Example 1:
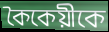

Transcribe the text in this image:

কৈকেয়ীকে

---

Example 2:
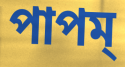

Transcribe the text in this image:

পাপম্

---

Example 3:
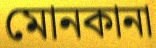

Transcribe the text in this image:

মোনকানা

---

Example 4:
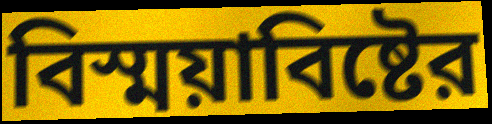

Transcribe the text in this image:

বিস্ময়াবিষ্টের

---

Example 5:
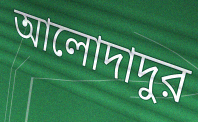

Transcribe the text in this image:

আলোদাদুর